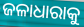
ଜଳାଧାରାକୁ